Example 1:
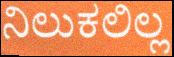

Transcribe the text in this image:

ನಿಲುಕಲಿಲ್ಲ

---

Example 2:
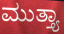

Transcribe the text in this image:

ಮುತ್ತ್ಯಾ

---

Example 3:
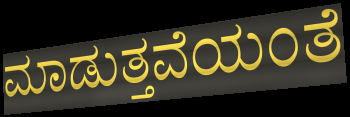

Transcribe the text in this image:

ಮಾಡುತ್ತವೆಯಂತೆ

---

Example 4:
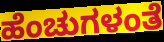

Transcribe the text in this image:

ಹೆಂಚುಗಳಂತೆ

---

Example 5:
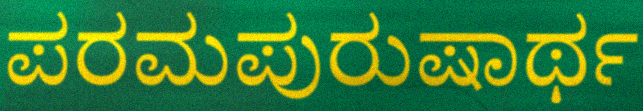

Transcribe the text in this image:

ಪರಮಪುರುಷಾರ್ಥ